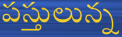
పస్తులున్న